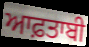
ਆਫ਼ਤਾਬੀ